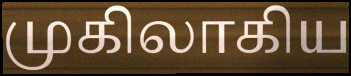
முகிலாகிய